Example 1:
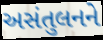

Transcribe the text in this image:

અસંતુલનને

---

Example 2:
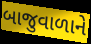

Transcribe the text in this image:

બાજુવાળાને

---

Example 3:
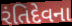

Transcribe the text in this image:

રંતિદેવના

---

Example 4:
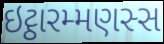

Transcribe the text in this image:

ઇટ્ઠારમ્મણસ્સ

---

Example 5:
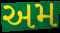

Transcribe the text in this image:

અમ